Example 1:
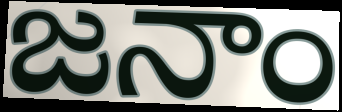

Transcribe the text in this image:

జనాం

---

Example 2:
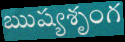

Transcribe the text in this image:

ఋష్యశృంగ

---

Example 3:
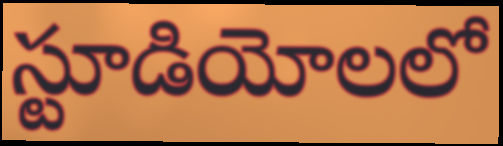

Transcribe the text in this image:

స్టూడియోలలో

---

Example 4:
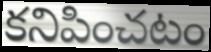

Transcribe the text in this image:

కనిపించటం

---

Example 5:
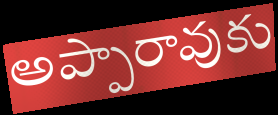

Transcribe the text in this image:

అప్పారావుకు